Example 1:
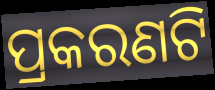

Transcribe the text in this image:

ପ୍ରକରଣଟି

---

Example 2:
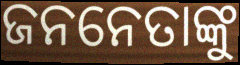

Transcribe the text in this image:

ଜନନେତାଙ୍କୁ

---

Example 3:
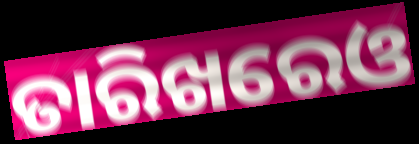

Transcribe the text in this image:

ତାରିଖରେଓ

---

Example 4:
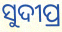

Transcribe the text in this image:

ସୁଦୀପ୍ର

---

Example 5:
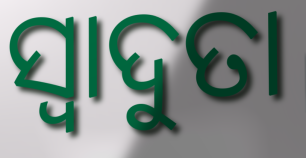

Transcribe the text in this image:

ସ୍ୱାଦୁତା